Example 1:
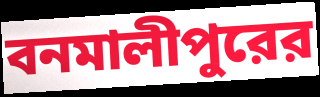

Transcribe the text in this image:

বনমালীপুরের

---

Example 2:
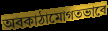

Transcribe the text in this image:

অবকাঠামোগতভাবে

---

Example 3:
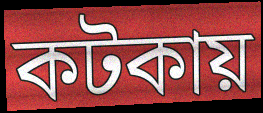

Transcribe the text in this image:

কটকায়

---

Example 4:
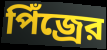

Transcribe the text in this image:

পিঁজ্রের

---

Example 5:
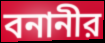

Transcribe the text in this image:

বনানীর